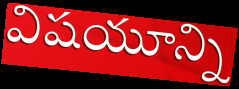
విషయూన్ని